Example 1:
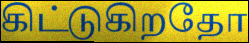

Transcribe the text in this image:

கிட்டுகிறதோ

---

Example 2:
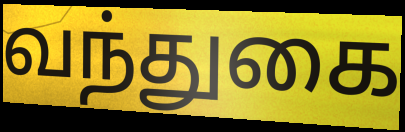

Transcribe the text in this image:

வந்துகை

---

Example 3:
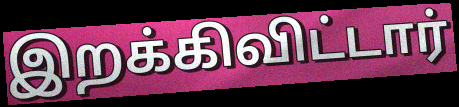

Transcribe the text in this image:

இறக்கிவிட்டார்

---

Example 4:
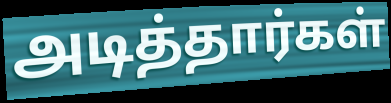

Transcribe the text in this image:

அடித்தார்கள்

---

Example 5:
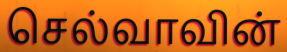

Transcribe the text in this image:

செல்வாவின்